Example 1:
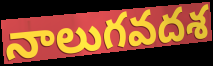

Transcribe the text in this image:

నాలుగవదశ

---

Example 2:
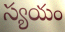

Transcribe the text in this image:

స్యయం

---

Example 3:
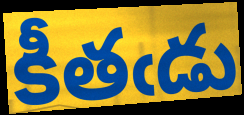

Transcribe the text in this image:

కీతఁడు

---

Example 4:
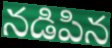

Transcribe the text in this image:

నడిపిన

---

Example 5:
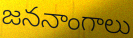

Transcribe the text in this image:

జననాంగాలు